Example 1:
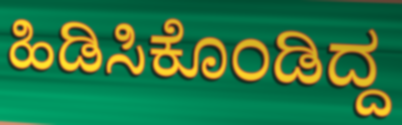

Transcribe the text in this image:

ಹಿಡಿಸಿಕೊಂಡಿದ್ದ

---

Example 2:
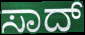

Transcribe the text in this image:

ಸಾದ್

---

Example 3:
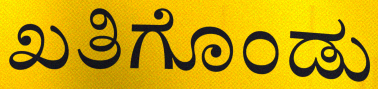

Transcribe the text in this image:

ಖತಿಗೊಂಡು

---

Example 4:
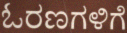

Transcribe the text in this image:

ಓರಣಗಳಿಗೆ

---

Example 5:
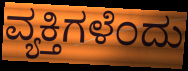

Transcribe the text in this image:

ವ್ಯಕ್ತಿಗಳೆಂದು